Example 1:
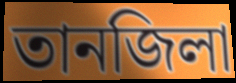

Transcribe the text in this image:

তানজিলা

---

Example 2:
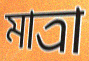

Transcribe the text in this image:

মাত্রা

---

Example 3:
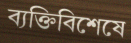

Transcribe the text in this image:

ব্যক্তিবিশেষে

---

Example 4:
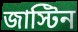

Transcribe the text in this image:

জাস্টিন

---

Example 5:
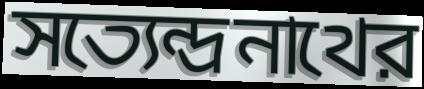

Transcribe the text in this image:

সত্যেন্দ্রনাথের